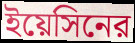
ইয়েসিনের